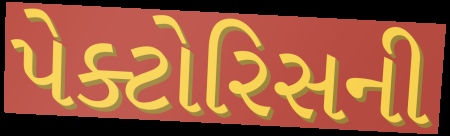
પેક્ટોરિસની